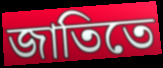
জাতিতে